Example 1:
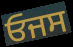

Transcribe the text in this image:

ਓਜਸ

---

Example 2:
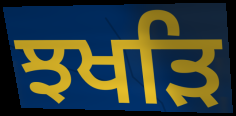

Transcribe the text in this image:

ਝਖੜਿ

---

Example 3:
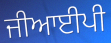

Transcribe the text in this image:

ਜੀਆਈਪੀ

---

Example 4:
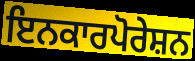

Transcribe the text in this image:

ਇਨਕਾਰਪੋਰੇਸ਼ਨ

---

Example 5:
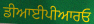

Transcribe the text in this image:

ਡੀਆਈਪੀਆਰਓ